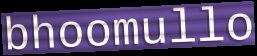
bhoomullo